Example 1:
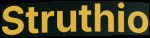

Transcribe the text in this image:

Struthio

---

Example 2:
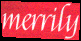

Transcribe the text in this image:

merrily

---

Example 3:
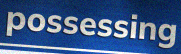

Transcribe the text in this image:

possessing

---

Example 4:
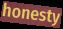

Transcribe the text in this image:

honesty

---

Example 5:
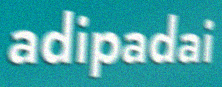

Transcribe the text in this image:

adipadai